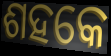
ଶହକେ